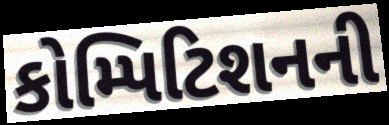
કોમ્પિટિશનની